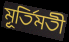
মূর্তিমতী